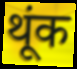
थूंक